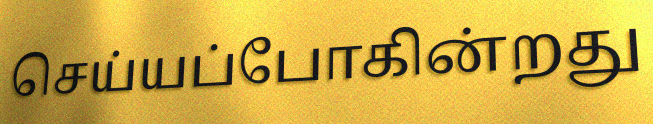
செய்யப்போகின்றது